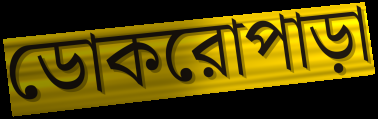
ডোকরোপাড়া